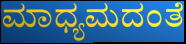
ಮಾಧ್ಯಮದಂತೆ